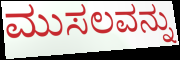
ಮುಸಲವನ್ನು